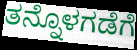
ತನ್ನೊಳಗಡೆಗೆ